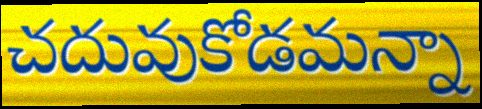
చదువుకోడమన్నా